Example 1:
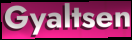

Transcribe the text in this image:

Gyaltsen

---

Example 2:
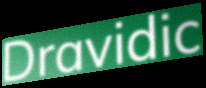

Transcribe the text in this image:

Dravidic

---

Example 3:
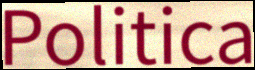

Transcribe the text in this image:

Politica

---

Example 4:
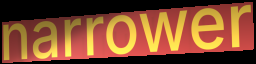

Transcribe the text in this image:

narrower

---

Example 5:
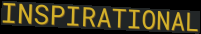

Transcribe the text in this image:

INSPIRATIONAL